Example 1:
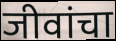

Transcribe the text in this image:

जीवांचा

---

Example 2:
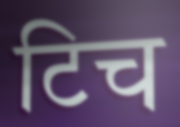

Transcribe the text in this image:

टिच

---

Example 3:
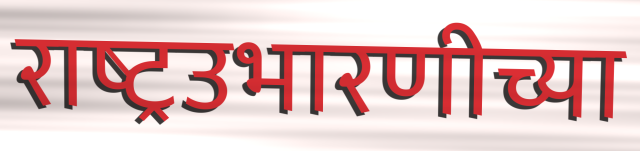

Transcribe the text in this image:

राष्ट्रउभारणीच्या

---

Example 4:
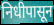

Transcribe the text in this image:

निधीपासून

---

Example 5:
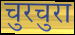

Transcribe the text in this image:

चुरचुरा